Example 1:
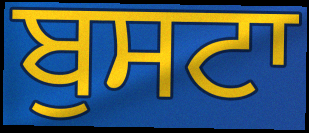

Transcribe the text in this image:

ਬੁਸਟਾ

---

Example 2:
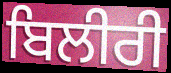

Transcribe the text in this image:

ਬਿਲੀਰੀ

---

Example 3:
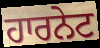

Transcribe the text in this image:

ਹਾਰਨੇਟ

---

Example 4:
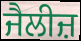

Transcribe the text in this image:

ਜੈਲੀਜ਼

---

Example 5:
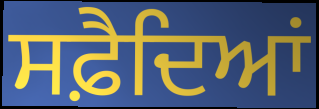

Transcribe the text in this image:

ਸਫ਼ੈਦਿਆਂ